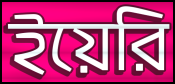
ইয়েরি